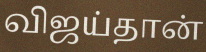
விஜய்தான்